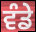
ਵੰਡੇ